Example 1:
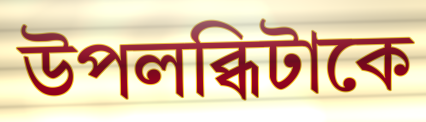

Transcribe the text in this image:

উপলব্ধিটাকে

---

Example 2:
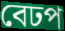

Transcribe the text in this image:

বেঢপ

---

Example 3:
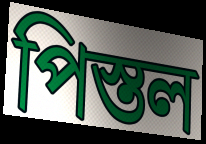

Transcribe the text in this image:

পিস্তল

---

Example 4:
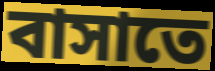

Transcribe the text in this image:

বাসাতে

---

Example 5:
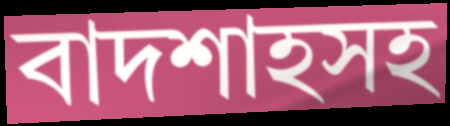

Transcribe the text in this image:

বাদশাহসহ